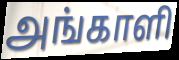
அங்காளி